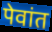
पेवांत